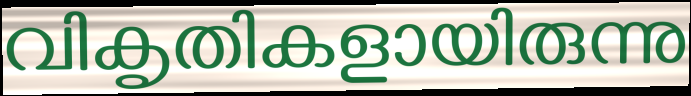
വികൃതികളായിരുന്നു